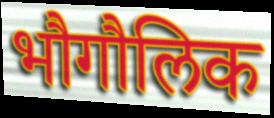
भौगौलिक